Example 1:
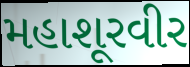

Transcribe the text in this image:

મહાશૂરવીર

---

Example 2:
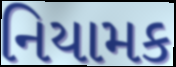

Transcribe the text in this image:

નિયામક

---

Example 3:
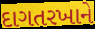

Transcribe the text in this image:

દાગતરખાને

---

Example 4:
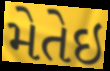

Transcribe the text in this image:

મેતેઇ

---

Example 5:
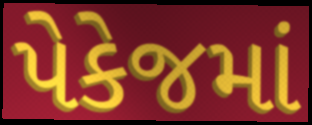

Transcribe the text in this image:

પેકેજમાં